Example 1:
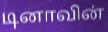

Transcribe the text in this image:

டினாவின்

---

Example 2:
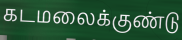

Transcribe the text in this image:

கடமலைக்குண்டு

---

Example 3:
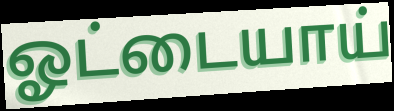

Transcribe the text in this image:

ஓட்டையாய்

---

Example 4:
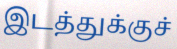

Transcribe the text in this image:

இடத்துக்குச்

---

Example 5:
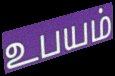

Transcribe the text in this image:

உபயம்